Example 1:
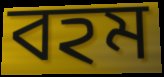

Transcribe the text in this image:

বহম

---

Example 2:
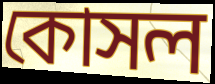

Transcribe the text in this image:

কোসল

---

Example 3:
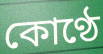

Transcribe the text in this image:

কোণ্ঠে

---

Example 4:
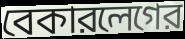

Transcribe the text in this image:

বেকারলেগের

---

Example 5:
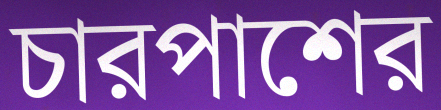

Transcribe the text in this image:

চারপাশের